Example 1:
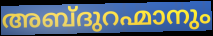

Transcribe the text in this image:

അബ്ദുറഹ്മാനും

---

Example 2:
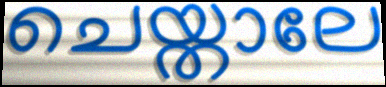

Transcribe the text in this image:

ചെയ്താലേ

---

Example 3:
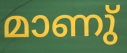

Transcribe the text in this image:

മാണു്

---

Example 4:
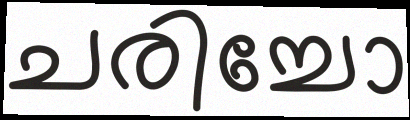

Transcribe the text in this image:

ചരിച്ചോ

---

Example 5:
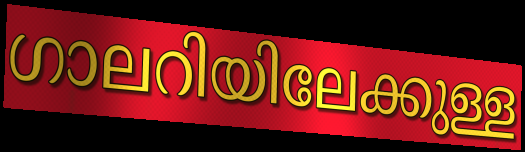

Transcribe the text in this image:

ഗാലറിയിലേക്കുള്ള